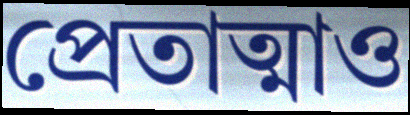
প্রেতাত্মাও